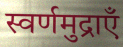
स्वर्णमुद्राएँ